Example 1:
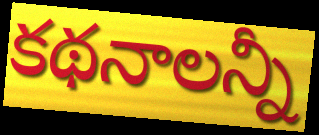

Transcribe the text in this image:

కథనాలన్నీ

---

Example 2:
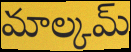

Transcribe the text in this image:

మాల్కమ్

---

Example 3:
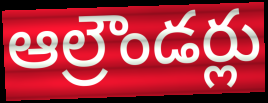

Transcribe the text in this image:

ఆల్రౌండర్లు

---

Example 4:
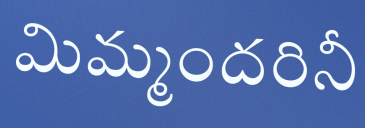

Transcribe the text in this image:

మిమ్మందరినీ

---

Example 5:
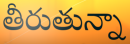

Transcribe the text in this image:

తీరుతున్నా